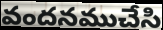
వందనముచేసి